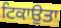
ਟਿਕਾਉਤਾ